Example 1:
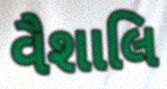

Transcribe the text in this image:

વૈશાલિ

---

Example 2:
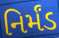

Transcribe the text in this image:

નિર્મંડ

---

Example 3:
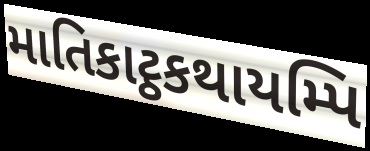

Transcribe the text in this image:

માતિકાટ્ઠકથાયમ્પિ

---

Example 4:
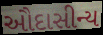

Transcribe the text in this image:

ઔદાસીન્ય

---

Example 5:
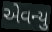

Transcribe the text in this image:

એવન્યુ